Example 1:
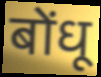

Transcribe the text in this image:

बोंधू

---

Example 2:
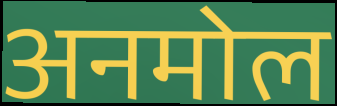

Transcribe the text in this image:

अनमोल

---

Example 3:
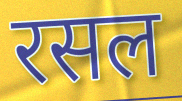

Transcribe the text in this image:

रसल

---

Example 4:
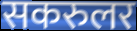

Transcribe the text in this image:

सकरुलर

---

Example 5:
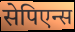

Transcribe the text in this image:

सेपिएन्स